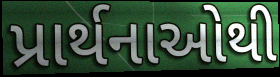
પ્રાર્થનાઓથી